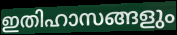
ഇതിഹാസങ്ങളും